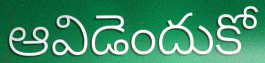
ఆవిడెందుకో